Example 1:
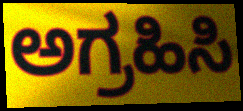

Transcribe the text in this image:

ಅಗ್ರಹಿಸಿ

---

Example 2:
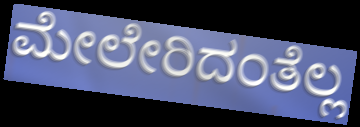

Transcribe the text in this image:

ಮೇಲೇರಿದಂತೆಲ್ಲ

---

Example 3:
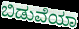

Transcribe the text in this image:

ಬಿಡುವೆಯಾ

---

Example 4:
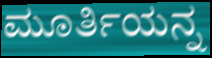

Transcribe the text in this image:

ಮೂರ್ತಿಯನ್ನ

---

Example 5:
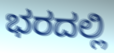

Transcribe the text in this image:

ಭರದಲ್ಲಿ